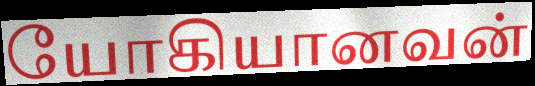
யோகியானவன்